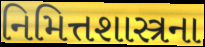
નિમિત્તશાસ્ત્રના